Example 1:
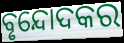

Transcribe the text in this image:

ବୃନ୍ଦୋଦକର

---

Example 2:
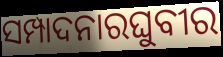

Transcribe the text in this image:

ସମ୍ପାଦନାରଘୁବୀର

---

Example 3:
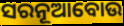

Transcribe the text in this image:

ସରନୂଆବୋଉ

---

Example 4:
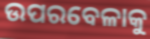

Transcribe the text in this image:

ଉପରବେଳାକୁ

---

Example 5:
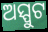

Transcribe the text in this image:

ଅସ୍ପୁଟ